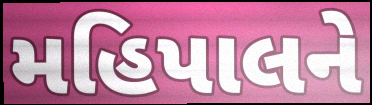
મહિપાલને